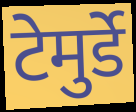
टेमुर्डे